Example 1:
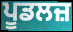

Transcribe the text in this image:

ਪੂਡਲਜ਼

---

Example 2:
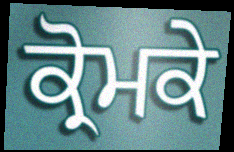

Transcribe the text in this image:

ਕ੍ਰੋਮਕੇ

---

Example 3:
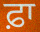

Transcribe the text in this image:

ਫ਼ਾ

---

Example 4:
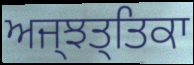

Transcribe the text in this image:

ਅਜ੍ਝਤ੍ਤਿਕਾ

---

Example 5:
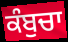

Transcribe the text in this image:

ਕੰਬੁਚਾ